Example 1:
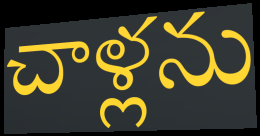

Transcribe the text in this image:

చాళ్లను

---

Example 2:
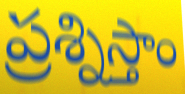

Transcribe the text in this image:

ప్రశ్నిస్తాం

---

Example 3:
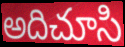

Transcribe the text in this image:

అదిచూసి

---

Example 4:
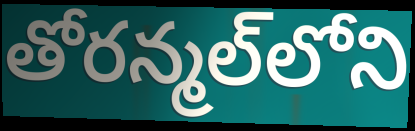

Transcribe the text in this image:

తోరన్మల్‌లోని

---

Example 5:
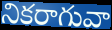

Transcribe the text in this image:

నికరాగువా